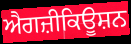
ਐਗਜ਼ੀਕਿਊਸ਼ਨ